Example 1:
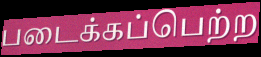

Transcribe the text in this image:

படைக்கப்பெற்ற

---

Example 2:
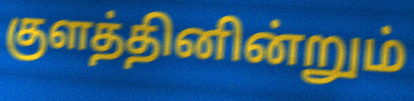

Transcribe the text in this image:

குளத்தினின்றும்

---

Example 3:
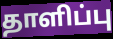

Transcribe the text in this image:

தாளிப்பு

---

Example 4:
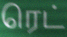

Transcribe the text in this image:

ரெட்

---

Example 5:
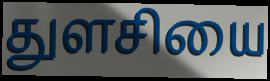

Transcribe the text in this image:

துளசியை